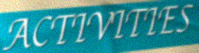
ACTIVITIES